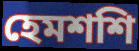
হেমশশি